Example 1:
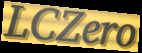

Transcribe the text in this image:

LCZero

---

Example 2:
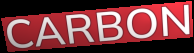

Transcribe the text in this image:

CARBON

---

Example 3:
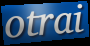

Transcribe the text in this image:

otrai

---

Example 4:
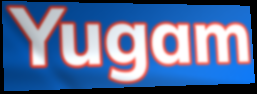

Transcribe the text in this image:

Yugam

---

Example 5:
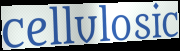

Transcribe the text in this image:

cellulosic